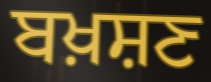
ਬਖ਼ਸ਼ਣ